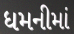
ધમનીમાં